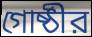
গোষ্ঠীর